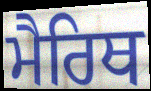
ਮੈਰਿਥ